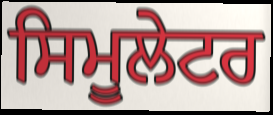
ਸਿਮੂਲੇਟਰ